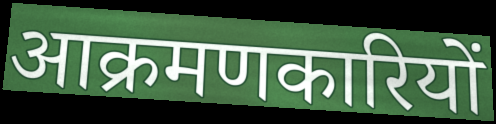
आक्रमणकारियों